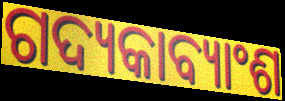
ଗଦ୍ୟକାବ୍ୟାଂଶ